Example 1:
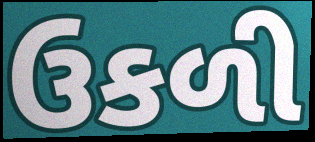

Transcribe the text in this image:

ઉકળી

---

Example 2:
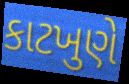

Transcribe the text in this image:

કાટખુણે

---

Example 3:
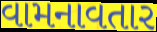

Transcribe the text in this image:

વામનાવતાર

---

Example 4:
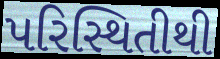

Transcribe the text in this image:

પરિસ્થિતીથી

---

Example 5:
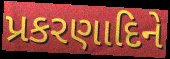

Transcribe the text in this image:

પ્રકરણાદિને